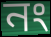
নং